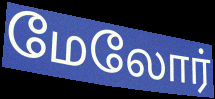
மேலோர்